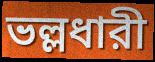
ভল্লধারী